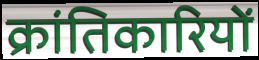
क्रांतिकारियों